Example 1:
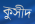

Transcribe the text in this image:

কুসীদ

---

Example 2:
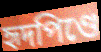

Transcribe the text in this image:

হৃদপিণ্ডে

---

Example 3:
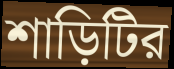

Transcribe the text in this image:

শাড়িটির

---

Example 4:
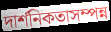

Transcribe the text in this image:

দার্শনিকতাসম্পন্ন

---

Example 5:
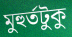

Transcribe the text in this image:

মুহুর্তটুকু